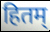
हितम्